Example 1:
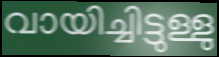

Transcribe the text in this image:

വായിച്ചിട്ടുള്ളു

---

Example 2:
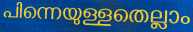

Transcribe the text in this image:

പിന്നെയുള്ളതെല്ലാം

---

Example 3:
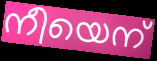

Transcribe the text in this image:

നീയെന്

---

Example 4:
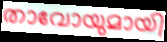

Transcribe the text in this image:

താവോയുമായി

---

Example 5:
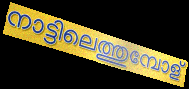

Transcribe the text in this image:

നാട്ടിലെത്തുമ്പോള്